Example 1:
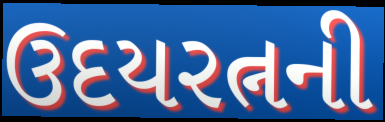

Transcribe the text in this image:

ઉદયરત્નની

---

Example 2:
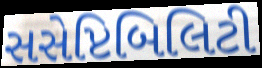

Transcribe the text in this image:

સસેપ્ટિબિલિટી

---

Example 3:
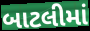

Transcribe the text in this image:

બાટલીમાં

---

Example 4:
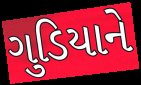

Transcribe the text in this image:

ગુડિયાને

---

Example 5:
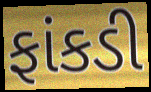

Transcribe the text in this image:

ફાંકડી